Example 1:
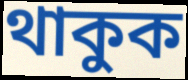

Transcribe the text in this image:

থাকুক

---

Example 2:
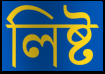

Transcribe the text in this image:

লিষ্ট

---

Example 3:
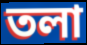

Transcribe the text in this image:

তলা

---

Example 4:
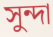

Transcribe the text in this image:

সুন্দা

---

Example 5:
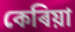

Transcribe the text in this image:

কেৰিয়া